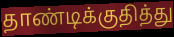
தாண்டிக்குதித்து